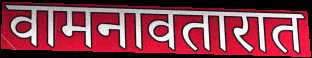
वामनावतारात